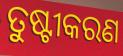
ତୁଷ୍ଟୀକରଣ